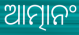
ଆତ୍ମାନଂ